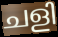
ചളി